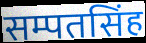
सम्पतसिंह